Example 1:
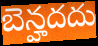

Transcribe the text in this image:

బెన్హదదు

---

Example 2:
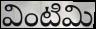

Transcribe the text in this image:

వింటిమి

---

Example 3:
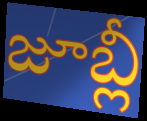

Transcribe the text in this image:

జూబ్లీ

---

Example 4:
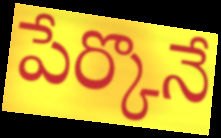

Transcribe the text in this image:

పేర్కొనే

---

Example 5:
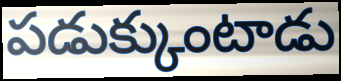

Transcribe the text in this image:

పడుక్కుంటాడు